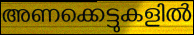
അണക്കെട്ടുകളിൽ